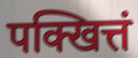
पक्खित्तं